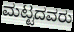
ಮಟ್ಟದವರು